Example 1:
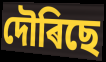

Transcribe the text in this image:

দৌৰিছে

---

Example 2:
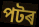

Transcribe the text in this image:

পটৰ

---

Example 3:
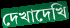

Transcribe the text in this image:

দেখাদেখি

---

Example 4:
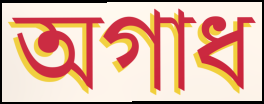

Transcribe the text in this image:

অগাধ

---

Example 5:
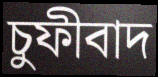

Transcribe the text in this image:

চুফীবাদ